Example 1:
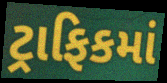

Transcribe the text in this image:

ટ્રાફિકમાં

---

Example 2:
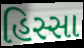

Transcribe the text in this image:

હિસ્સા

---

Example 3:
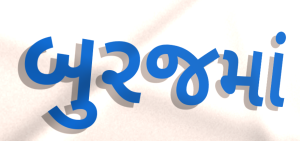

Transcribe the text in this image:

બુરજમાં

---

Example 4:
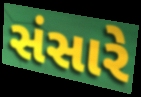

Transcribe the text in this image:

સંસારે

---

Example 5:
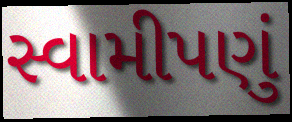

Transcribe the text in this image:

સ્વામીપણું